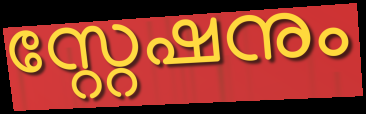
സ്റ്റേഷനും